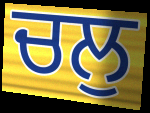
ਚਲੁ